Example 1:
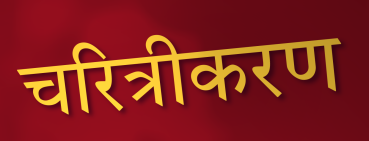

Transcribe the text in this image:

चरित्रीकरण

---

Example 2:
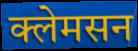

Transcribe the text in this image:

क्लेमसन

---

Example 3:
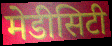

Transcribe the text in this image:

मेडीसिटी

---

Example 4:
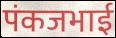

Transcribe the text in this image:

पंकजभाई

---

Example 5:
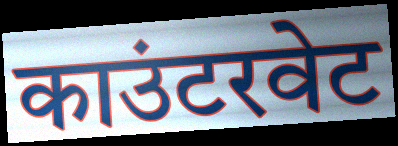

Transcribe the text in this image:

काउंटरवेट